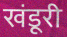
खंडूरी